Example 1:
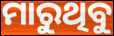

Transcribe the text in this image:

ମାରୁଥିବୁ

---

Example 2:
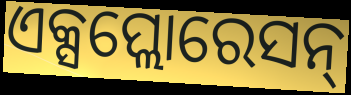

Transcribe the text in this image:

ଏକ୍ସପ୍ଲୋରେସନ୍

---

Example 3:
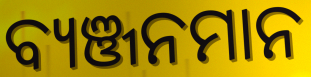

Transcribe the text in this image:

ବ୍ୟଞ୍ଜନମାନ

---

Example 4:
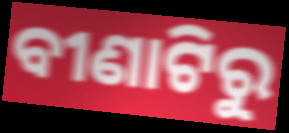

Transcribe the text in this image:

ବୀଣାଟିରୁ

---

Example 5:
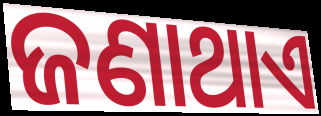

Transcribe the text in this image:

ଜଣାଥାଏ